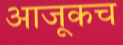
आजूकच